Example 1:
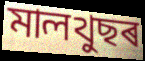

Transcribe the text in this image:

মালথুছৰ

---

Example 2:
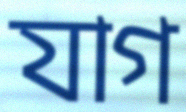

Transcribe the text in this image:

যাগ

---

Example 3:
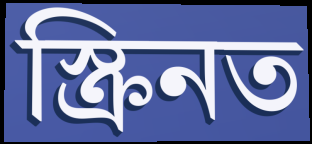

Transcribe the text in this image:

স্ক্ৰিনত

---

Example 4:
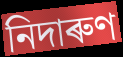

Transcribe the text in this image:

নিদাৰুণ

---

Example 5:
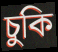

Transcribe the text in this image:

চুকি